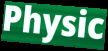
Physic